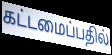
கட்டமைப்பதில்